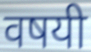
वषयी